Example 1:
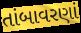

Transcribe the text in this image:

તાંબાવરણાં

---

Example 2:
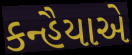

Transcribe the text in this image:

કન્હૈયાએ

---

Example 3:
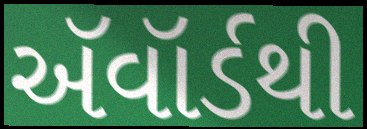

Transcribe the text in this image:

ઍવૉર્ડથી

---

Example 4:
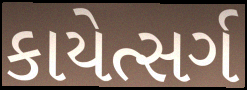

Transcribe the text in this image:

કાયેત્સર્ગ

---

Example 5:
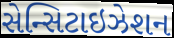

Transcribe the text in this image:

સેન્સિટાઇઝેશન